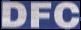
DFC